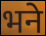
भने